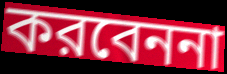
করবেননা